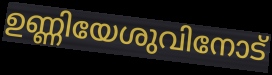
ഉണ്ണിയേശുവിനോട്